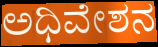
ಅಧಿವೇಶನ